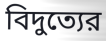
বিদুত্যের